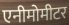
एनीमोमीटर